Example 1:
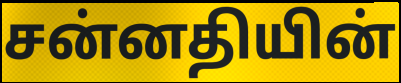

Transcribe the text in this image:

சன்னதியின்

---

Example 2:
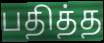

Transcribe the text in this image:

பதித்த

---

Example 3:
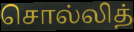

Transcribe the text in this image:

சொல்லித்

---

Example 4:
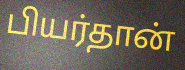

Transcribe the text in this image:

பியர்தான்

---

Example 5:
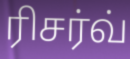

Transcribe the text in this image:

ரிசர்வ்